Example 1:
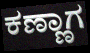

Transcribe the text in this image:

ಕಣ್ಣಾಗ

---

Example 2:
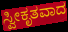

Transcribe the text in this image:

ಸ್ವೀಕೃತವಾದ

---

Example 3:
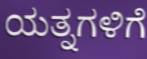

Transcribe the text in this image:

ಯತ್ನಗಳಿಗೆ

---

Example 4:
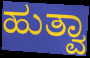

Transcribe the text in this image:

ಹುತ್ವಾ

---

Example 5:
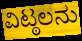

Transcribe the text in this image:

ವಿಟ್ಠಲನು